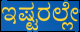
ಇಷ್ಟರಲ್ಲೇ